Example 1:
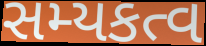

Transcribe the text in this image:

સમ્યકત્વ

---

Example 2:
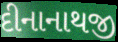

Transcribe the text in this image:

દીનાનાથજી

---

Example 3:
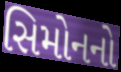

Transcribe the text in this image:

સિમોનનો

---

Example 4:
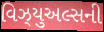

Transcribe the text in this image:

વિઝ્યુઅલ્સની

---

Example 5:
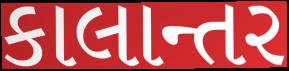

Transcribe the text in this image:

કાલાન્તર